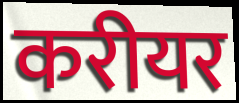
करीयर